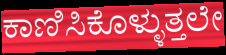
ಕಾಣಿಸಿಕೊಳ್ಳುತ್ತಲೇ